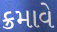
ક્રમાવે